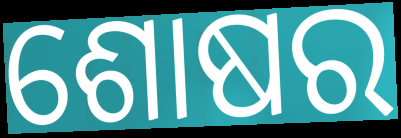
ଶୋଷର